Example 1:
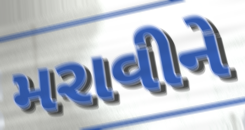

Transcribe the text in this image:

મરાવીને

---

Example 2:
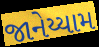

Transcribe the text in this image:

જાનેય્યામ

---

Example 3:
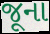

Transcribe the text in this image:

જૂના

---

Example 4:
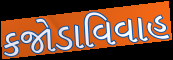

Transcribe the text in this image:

કજોડાવિવાહ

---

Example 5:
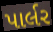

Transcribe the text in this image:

પાર્લર